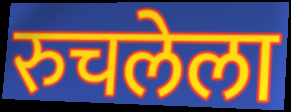
रुचलेला